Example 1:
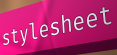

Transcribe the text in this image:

stylesheet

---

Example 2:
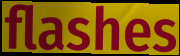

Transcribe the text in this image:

flashes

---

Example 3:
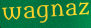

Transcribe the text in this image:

wagnaz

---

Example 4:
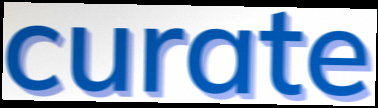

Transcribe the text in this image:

curate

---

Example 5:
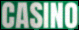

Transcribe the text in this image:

CASINO